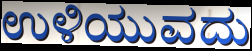
ಉಳಿಯುವದು